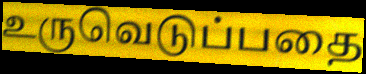
உருவெடுப்பதை